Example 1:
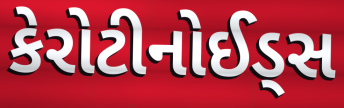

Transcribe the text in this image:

કેરોટીનોઈડ્સ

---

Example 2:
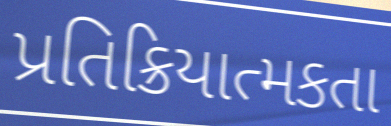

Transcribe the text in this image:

પ્રતિક્રિયાત્મકતા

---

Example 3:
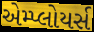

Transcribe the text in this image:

એમ્પ્લોયર્સ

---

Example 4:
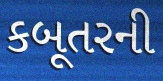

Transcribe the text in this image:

કબૂતરની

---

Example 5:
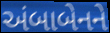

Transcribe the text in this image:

અંબાબેનને